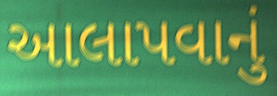
આલાપવાનું